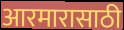
आरमारासाठी